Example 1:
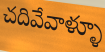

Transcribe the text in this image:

చదివేవాళ్ళూ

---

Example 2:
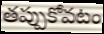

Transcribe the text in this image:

తప్పుకోవటం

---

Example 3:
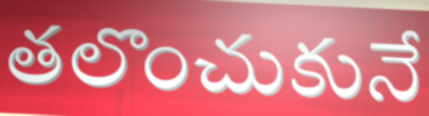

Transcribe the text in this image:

తలొంచుకునే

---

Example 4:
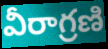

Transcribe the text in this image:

వీరాగ్రణి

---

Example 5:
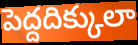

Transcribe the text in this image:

పెద్దదిక్కులా